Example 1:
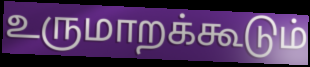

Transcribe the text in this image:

உருமாறக்கூடும்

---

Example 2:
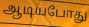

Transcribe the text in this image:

ஆடியபோது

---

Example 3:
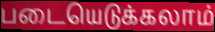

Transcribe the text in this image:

படையெடுக்கலாம்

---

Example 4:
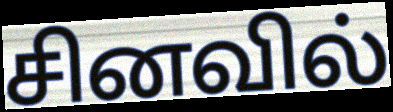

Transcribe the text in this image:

சினவில்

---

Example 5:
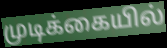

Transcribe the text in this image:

முடிக்கையில்